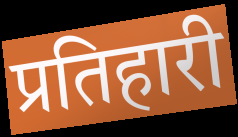
प्रतिहारी